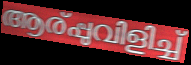
ആര്പ്പുവിളിച്ച്